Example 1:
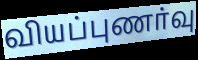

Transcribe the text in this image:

வியப்புணர்வு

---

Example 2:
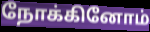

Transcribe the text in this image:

நோக்கினோம்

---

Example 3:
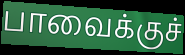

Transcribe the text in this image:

பாவைக்குச்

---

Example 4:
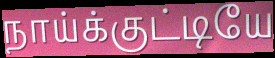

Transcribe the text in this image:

நாய்க்குட்டியே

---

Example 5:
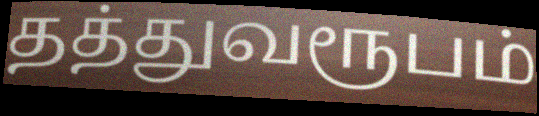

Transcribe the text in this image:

தத்துவரூபம்